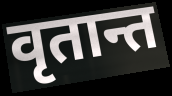
वृतान्त